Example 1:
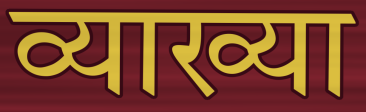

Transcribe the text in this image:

व्याख्‍या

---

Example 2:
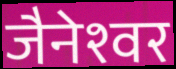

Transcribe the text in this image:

जैनेश्वर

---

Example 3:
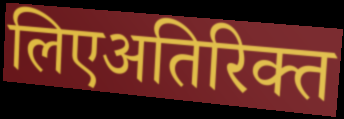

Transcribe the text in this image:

लिएअतिरिक्त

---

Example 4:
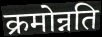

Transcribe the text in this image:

क्रमोन्नति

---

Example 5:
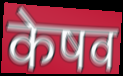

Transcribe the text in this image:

केषव